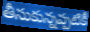
తీసుకున్నప్పటికీ